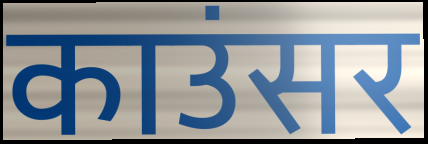
काउंसर